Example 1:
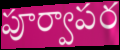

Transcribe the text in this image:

పూర్వాపర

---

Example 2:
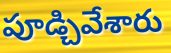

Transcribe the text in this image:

పూడ్చివేశారు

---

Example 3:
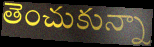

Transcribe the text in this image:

తెంచుకున్నా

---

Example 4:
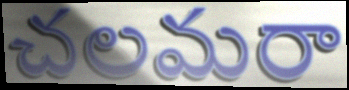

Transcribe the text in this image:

చలమరా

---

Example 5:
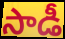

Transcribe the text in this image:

సాడీ